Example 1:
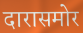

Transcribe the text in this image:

दारासमोर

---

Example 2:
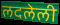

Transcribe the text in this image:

लदलेली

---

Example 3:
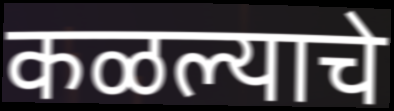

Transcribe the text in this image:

कळल्याचे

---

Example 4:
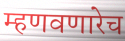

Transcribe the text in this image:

म्हणवणारेच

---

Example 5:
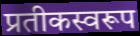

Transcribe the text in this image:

प्रतीकस्वरूप